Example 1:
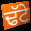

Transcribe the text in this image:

ਢੱਟੇ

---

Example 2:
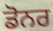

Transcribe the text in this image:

ਡੋਨਰ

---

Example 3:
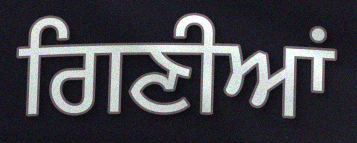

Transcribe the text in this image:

ਗਿਣੀਆਂ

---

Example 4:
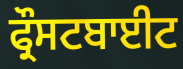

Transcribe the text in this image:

ਫ੍ਰੌਸਟਬਾਈਟ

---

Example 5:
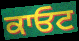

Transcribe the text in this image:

ਕਾਓਟ